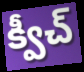
క్వీచ్